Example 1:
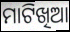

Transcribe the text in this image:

ମାଟିଖିଆ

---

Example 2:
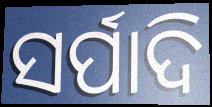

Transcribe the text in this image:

ସର୍ପାଦି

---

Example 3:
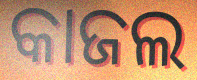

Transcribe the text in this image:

କାଜଲ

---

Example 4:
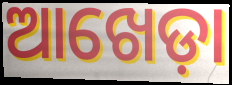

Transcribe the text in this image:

ଆଖେଡ଼ା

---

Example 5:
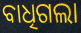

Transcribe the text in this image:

ବାଧିଗଲା